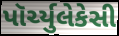
પૉર્ચ્યુલેકેસી